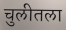
चुलीतला